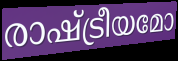
രാഷ്ട്രീയമോ